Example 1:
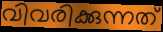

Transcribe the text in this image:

വിവരിക്കുന്നത്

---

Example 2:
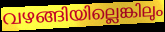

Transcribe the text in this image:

വഴങ്ങിയില്ലെങ്കിലും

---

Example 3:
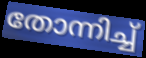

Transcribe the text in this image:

തോന്നിച്ച്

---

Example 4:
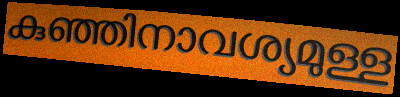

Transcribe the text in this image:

കുഞ്ഞിനാവശ്യമുള്ള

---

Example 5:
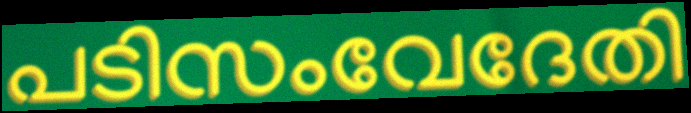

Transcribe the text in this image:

പടിസംവേദേതി